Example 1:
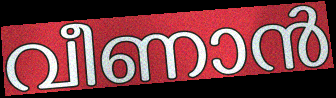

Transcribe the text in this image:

വീണാൻ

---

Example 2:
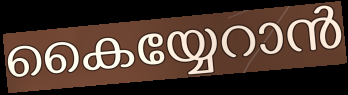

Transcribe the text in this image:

കൈയ്യേറാൻ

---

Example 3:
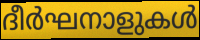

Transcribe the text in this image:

ദീർഘനാളുകൾ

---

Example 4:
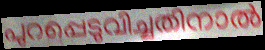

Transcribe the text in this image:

പുറപ്പെടുവിച്ചതിനാൽ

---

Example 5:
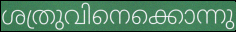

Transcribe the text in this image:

ശത്രുവിനെക്കൊന്നു